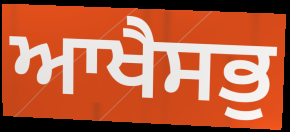
ਆਖੈਸਭੁ